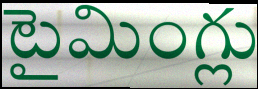
టైమింగ్లు